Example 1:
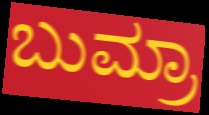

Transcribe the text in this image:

ಬುಮ್ರಾ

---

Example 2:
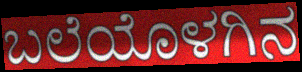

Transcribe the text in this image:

ಬಲೆಯೊಳಗಿನ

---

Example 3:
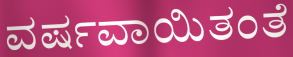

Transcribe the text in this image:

ವರ್ಷವಾಯಿತಂತೆ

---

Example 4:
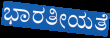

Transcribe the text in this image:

ಭಾರತೀಯತೆ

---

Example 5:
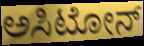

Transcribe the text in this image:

ಅಸಿಟೋನ್